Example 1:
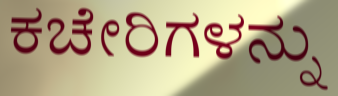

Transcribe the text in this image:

ಕಚೇರಿಗಳನ್ನು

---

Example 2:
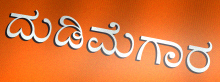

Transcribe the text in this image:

ದುಡಿಮೆಗಾರ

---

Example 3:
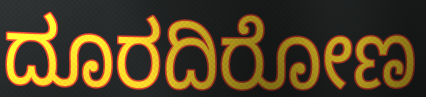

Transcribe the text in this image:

ದೂರದಿರೋಣ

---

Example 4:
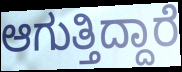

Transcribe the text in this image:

ಆಗುತ್ತಿದ್ದಾರೆ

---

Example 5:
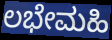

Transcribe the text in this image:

ಲಭೇಮಹಿ